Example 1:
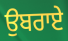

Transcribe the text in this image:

ਉਬਰਾਏ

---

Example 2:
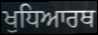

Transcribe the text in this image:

ਖੁਧਿਆਰਥ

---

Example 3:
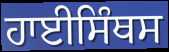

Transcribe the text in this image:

ਹਾਈਸਿੰਥਸ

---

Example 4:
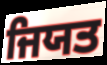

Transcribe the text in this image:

ਜਿਯਤ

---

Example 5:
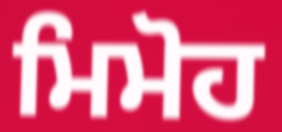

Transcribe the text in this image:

ਮਿਮੋਹ